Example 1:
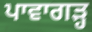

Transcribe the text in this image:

ਪਾਵਾਗੜ੍ਹ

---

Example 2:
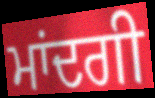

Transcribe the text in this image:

ਮਾਂਦਗੀ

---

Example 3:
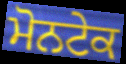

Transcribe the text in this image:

ਮੋਨਟੇਕ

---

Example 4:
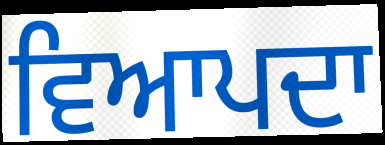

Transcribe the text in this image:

ਵਿਆਪਦਾ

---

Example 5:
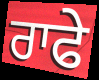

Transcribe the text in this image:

ਰਾਫੇ